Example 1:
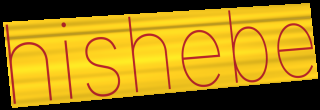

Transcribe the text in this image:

hishebe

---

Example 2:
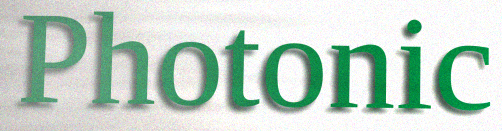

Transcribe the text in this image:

Photonic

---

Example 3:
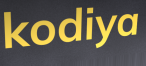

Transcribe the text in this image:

kodiya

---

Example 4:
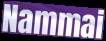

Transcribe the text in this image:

Nammai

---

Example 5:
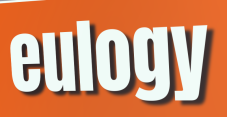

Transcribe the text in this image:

eulogy